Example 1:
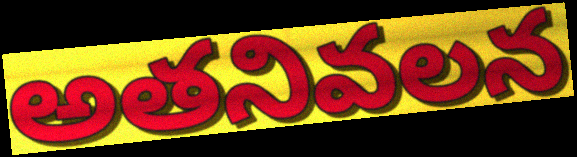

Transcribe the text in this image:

అతనివలన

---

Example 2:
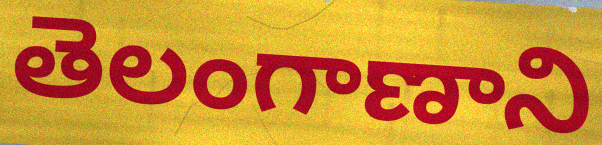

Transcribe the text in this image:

తెలంగాణాని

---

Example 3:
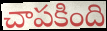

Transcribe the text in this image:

చాపకింది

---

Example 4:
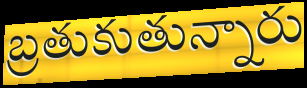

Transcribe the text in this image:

బ్రతుకుతున్నారు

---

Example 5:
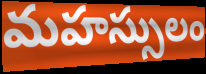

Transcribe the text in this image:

మహస్సులం